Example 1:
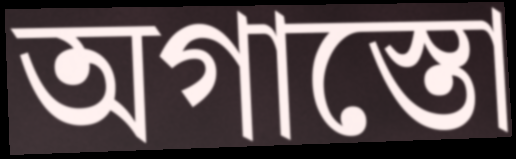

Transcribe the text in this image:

অগাস্তো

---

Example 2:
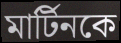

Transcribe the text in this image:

মার্টিনকে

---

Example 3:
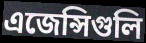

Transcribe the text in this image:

এজেন্সিগুলি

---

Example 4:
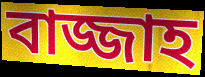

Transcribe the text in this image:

বাজ্জাহ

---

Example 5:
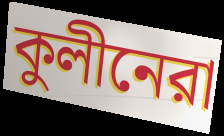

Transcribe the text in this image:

কুলীনেরা